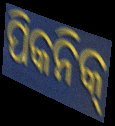
ପିକନିକ୍